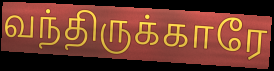
வந்திருக்காரே